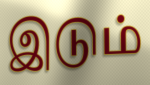
இடும்